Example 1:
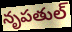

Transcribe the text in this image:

నృపతుల్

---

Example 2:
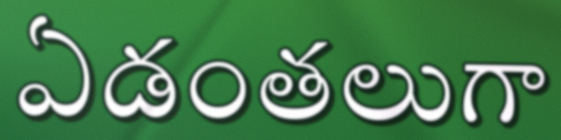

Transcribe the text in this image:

ఏడంతలుగా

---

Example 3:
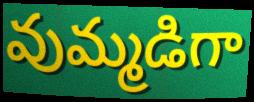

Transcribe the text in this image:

వుమ్మడిగా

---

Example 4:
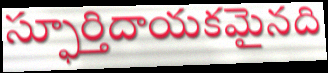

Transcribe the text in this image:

స్ఫూర్తిదాయకమైనది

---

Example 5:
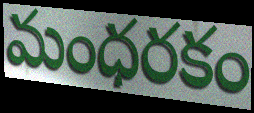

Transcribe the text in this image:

మంధరకం